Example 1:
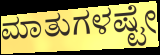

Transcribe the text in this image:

ಮಾತುಗಳಷ್ಟೇ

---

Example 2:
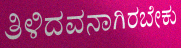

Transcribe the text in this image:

ತಿಳಿದವನಾಗಿರಬೇಕು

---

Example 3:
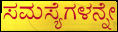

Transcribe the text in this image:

ಸಮಸ್ಯೆಗಳನ್ನೇ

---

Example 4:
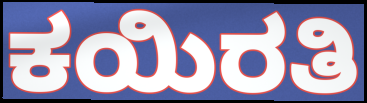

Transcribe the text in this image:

ಕಯಿರತಿ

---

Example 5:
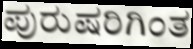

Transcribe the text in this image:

ಪುರುಷರಿಗಿಂತ